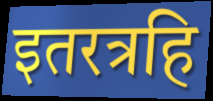
इतरत्रहि